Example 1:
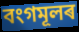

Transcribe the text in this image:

বংগমূলৰ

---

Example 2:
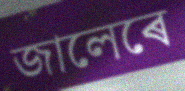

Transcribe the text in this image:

জালেৰে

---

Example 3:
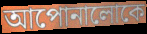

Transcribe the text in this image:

আপোনালোকে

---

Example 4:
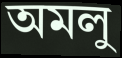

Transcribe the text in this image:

অমলু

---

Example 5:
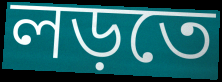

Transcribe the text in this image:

লড়তে